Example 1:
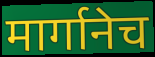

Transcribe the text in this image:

मार्गानेच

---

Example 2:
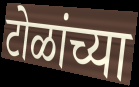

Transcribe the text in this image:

टोळांच्या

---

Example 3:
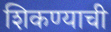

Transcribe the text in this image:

शिकण्याची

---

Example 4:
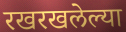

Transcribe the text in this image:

रखरखलेल्या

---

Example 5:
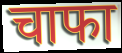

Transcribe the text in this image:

चाफा